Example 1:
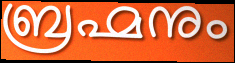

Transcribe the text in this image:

ബ്രഹ്മനും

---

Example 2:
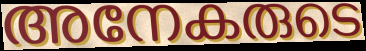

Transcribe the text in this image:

അനേകരുടെ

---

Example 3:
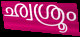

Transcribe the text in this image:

ഛ്വശ്രൂം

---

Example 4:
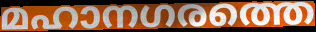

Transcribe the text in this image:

മഹാനഗരത്തെ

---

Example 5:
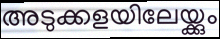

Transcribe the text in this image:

അടുക്കളയിലേയ്ക്കും